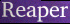
Reaper